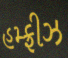
હમ્ફ્રીઝ